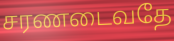
சரணடைவதே